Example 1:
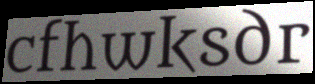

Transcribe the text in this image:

cfhwksdr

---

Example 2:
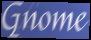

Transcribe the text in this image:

Gnome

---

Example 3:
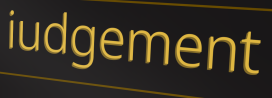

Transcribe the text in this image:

iudgement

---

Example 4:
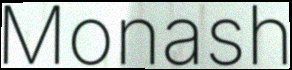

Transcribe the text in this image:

Monash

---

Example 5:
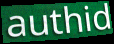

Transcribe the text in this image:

authid